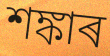
শঙ্কাৰ